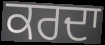
ਕਰਦਾ